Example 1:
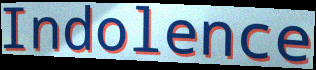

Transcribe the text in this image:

Indolence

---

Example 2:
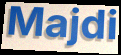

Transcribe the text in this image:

Majdi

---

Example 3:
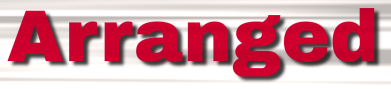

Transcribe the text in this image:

Arranged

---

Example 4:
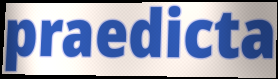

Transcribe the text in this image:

praedicta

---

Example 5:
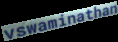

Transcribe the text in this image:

vswaminathan